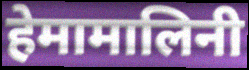
हेमामालिनी